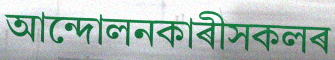
আন্দোলনকাৰীসকলৰ